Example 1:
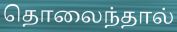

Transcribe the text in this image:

தொலைந்தால்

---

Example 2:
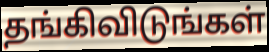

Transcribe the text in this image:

தங்கிவிடுங்கள்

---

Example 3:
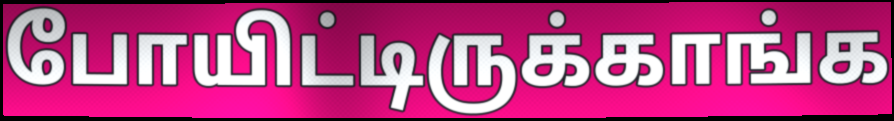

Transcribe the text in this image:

போயிட்டிருக்காங்க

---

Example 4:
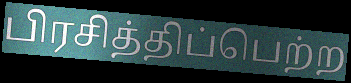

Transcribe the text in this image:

பிரசித்திப்பெற்ற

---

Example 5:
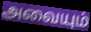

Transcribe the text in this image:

அவையும்